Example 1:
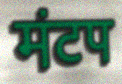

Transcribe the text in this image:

मंटप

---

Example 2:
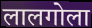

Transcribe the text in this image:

लालगोला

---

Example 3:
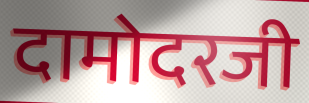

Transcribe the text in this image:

दामोदरजी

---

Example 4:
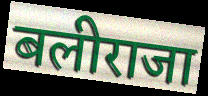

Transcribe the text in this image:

बलीराजा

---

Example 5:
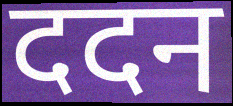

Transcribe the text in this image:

ददन